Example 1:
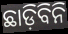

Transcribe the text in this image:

ଛାଡ଼ିବିନି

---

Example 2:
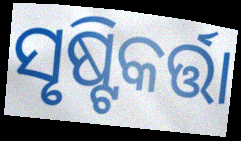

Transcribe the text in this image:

ସୃଷ୍ଟିକର୍ତ୍ତା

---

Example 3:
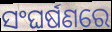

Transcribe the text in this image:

ସଂଘର୍ଷଣରେ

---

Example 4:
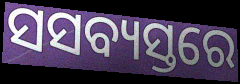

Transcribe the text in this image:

ସସବ୍ୟସ୍ତରେ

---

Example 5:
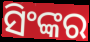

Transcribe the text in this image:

ସିଂଙ୍କର